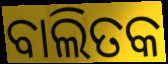
ବାଲିତକ